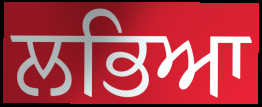
ਲਭਿਆ